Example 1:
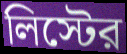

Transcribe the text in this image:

লিস্টের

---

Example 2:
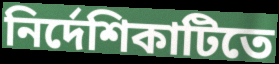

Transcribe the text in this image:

নির্দেশিকাটিতে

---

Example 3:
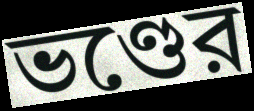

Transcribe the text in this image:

ভণ্ডের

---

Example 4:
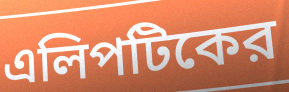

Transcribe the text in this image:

এলিপটিকের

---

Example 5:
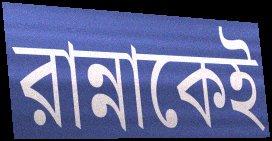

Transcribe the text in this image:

রান্নাকেই